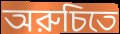
অরুচিতে